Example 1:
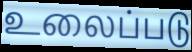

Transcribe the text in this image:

உலைப்படு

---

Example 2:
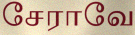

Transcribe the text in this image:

சேராவே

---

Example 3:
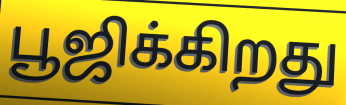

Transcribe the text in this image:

பூஜிக்கிறது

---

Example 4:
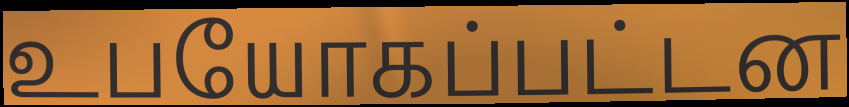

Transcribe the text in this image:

உபயோகப்பட்டன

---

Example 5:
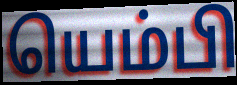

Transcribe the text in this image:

யெம்பி